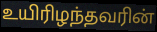
உயிரிழந்தவரின்